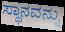
ಸ್ಥಾನವನ್ನು